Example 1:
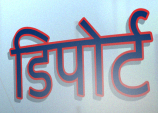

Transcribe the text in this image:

डिपोर्ट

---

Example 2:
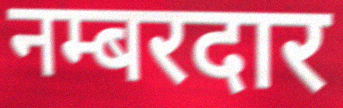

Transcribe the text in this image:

नम्बरदार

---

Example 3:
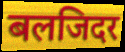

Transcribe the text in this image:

बलजिदर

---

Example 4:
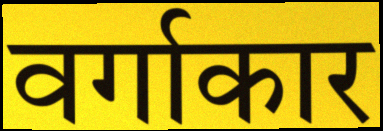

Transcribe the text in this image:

वर्गाकार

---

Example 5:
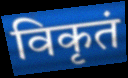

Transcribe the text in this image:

विकृतं